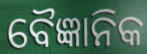
ବୈଜ୍ଞାନିକ